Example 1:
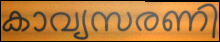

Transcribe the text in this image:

കാവ്യസരണി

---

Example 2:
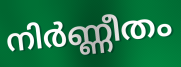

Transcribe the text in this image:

നിർണ്ണീതം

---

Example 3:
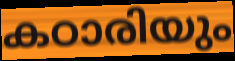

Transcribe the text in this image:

കഠാരിയും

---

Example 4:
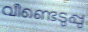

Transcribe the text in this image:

വീണ്ടെടുപ്പു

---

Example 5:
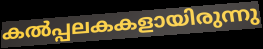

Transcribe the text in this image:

കൽപ്പലകകളായിരുന്നു